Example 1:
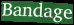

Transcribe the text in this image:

Bandage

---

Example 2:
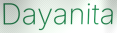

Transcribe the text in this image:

Dayanita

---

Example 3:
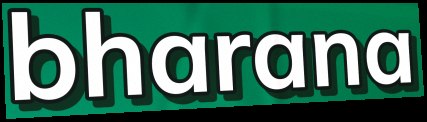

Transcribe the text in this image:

bharana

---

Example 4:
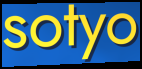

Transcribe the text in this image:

sotyo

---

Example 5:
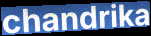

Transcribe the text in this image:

chandrika